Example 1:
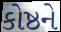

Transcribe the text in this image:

કોષ્ઠને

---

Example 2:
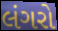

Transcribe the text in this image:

લંગરો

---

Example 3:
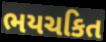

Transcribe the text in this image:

ભયચકિત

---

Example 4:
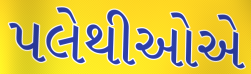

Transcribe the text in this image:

પલેથીઓએ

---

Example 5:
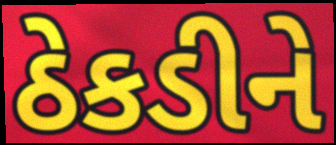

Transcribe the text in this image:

ઠેકડીને